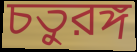
চতুরঙ্গ